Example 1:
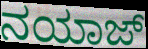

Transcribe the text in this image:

ನಯಾಜ್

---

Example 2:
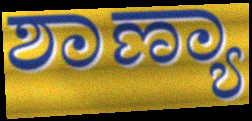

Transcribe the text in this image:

ಶಾಣ್ಯಾ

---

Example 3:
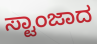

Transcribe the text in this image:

ಸ್ಟಾಂಜಾದ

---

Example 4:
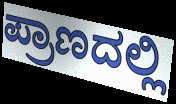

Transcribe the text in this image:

ಪ್ರಾಣದಲ್ಲಿ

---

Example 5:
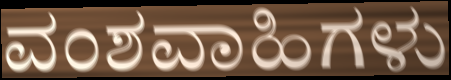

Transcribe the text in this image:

ವಂಶವಾಹಿಗಳು